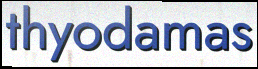
thyodamas